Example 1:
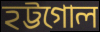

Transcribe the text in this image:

হট্টগোল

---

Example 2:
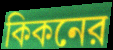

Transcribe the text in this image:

কিকনের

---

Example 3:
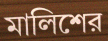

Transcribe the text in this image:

মালিশের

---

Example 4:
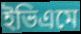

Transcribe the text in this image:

ইভিএমে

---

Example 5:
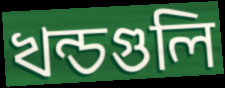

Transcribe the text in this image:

খন্ডগুলি